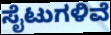
ಸೈಟುಗಳಿವೆ